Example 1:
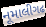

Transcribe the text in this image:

નૂમાલીગઢ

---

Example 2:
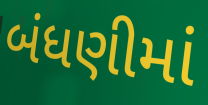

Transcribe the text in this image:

બંધણીમાં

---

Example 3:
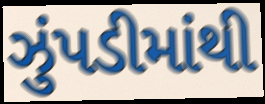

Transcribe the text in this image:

ઝુંપડીમાંથી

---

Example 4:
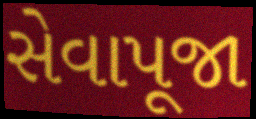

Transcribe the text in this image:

સેવાપૂજા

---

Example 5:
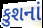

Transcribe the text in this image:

કુશનાં